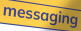
messaging